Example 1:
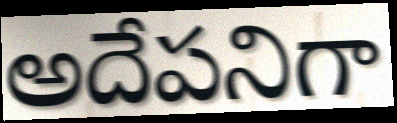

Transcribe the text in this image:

అదేపనిగా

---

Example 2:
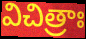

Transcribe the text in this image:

విచిత్రాః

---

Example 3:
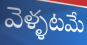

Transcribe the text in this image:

వెళ్ళటమే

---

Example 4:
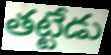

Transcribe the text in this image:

తట్టేడు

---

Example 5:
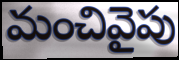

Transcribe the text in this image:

మంచివైపు